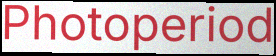
Photoperiod